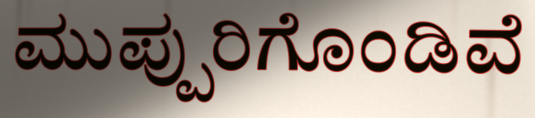
ಮುಪ್ಪುರಿಗೊಂಡಿವೆ